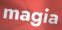
magia